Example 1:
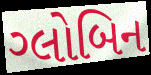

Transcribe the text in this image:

ગ્લોબિન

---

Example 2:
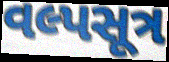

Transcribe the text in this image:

વલ્પસૂત્ર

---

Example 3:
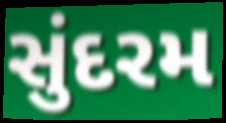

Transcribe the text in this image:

સુંદરમ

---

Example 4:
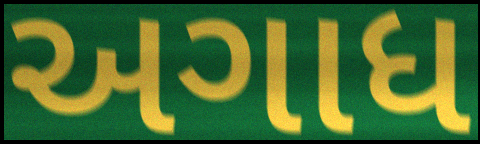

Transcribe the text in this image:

અગાધ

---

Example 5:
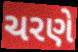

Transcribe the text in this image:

ચરણે